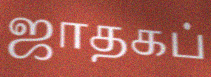
ஜாதகப்